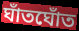
ঘাঁতঘোঁত